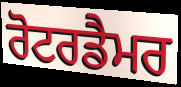
ਰੋਟਰਡੈਮਰ